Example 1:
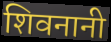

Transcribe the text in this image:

शिवनानी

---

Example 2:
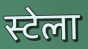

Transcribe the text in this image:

स्टेला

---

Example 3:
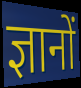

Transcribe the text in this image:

ज्ञानों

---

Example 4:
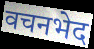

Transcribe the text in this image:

वचनभेद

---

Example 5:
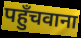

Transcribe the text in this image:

पहुँचवाना